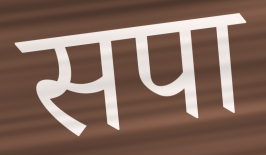
सपा